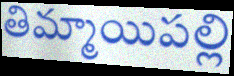
తిమ్మాయిపల్లి